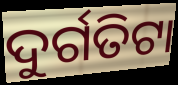
ଦୁର୍ଗତିଟା